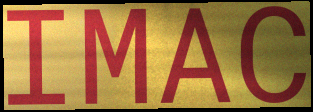
IMAC